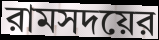
রামসদয়ের